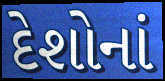
દેશોનાં